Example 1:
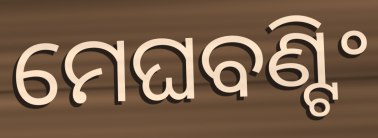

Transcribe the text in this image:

ମେଘବଣ୍ଟିଂ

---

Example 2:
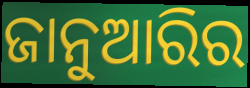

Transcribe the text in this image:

ଜାନୁଆରିର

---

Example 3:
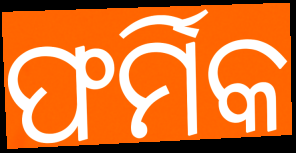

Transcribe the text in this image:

ଫର୍ମିକ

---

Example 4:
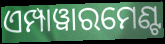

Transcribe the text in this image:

ଏମ୍ପାୱାରମେଣ୍ଟ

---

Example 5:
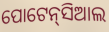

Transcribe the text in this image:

ପୋଟେନ୍‌ସିଆଲ